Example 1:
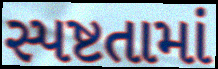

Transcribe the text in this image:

સ્પષ્ટતામાં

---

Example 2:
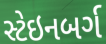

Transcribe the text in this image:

સ્ટેઇનબર્ગ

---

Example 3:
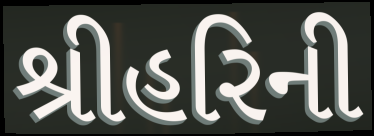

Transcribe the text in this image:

શ્રીહરિની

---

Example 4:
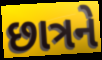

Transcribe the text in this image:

છાત્રને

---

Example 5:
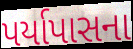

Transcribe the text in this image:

પર્યાપાસના